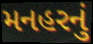
મનહરનું